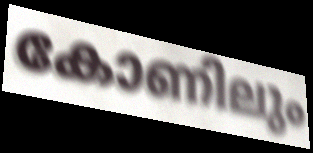
കോണിലും